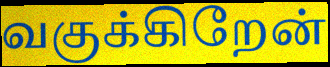
வகுக்கிறேன்